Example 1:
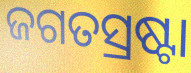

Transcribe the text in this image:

ଜଗତସ୍ରଷ୍ଟା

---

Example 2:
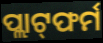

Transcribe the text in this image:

ପ୍ଲାଟ୍‌ଫର୍ମ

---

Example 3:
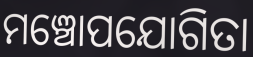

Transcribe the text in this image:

ମଞ୍ଚୋପଯୋଗିତା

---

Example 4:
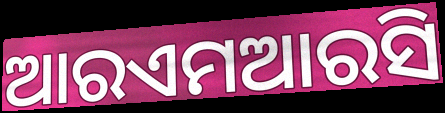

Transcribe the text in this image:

ଆରଏମଆରସି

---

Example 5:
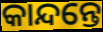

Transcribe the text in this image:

କାନ୍ଦନ୍ତେ